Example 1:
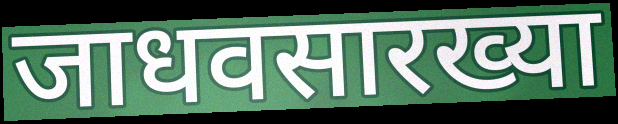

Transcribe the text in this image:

जाधवसारख्या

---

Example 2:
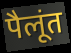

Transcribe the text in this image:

पैलूंत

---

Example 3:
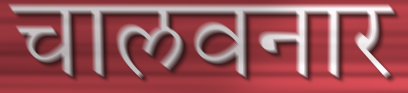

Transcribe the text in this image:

चालवनार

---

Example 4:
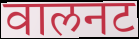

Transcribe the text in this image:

वालनट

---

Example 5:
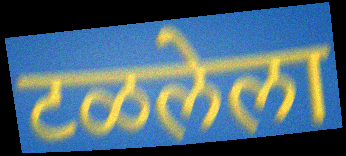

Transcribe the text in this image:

टळलेला